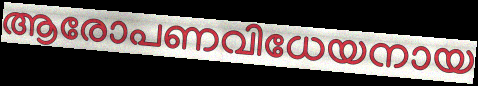
ആരോപണവിധേയനായ